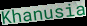
Khanusia